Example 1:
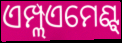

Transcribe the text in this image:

ଏମ୍ପ୍ଲଏମେଣ୍ଟ୍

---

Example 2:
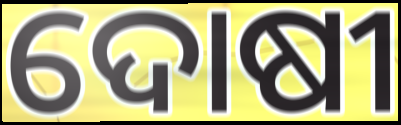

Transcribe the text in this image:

ଦୋଷୀ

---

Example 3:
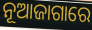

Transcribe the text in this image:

ନୂଆଜାଗାରେ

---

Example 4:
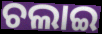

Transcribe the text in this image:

ଚଲାଇ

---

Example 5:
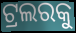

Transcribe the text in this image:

ଟ୍ରଲରକୁ